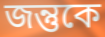
জন্তুকে